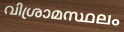
വിശ്രാമസ്ഥലം